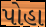
પોહા